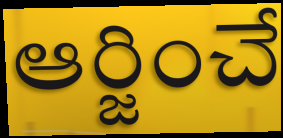
ఆర్జించే